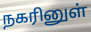
நகரினுள்